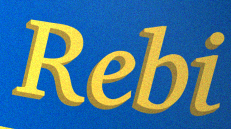
Rebi